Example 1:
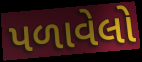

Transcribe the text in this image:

પળાવેલો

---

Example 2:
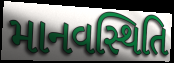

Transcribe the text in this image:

માનવસ્થિતિ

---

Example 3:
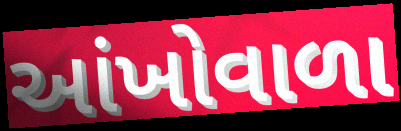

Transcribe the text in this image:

આંખોવાળા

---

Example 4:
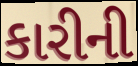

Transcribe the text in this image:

કારીની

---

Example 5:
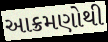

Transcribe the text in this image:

આક્રમણોથી